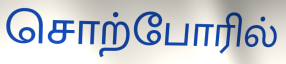
சொற்போரில்